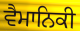
ਵੈਮਾਨਿਕੀ